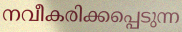
നവീകരിക്കപ്പെടുന്ന